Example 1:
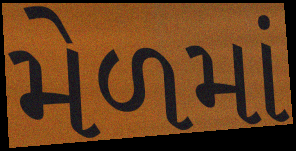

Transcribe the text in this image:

મેળમાં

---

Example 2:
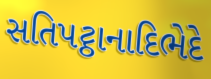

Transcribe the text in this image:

સતિપટ્ઠાનાદિભેદે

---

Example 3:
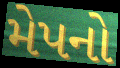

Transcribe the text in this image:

મેપનો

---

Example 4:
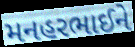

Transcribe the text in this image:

મનહરભાઈને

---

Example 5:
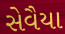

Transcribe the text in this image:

સેવૈયા